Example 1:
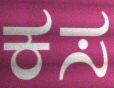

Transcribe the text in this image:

ಕಸ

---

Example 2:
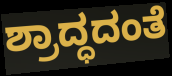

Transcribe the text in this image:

ಶ್ರಾದ್ಧದಂತೆ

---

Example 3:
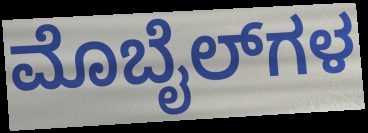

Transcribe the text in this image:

ಮೊಬೈಲ್‌ಗಳ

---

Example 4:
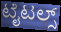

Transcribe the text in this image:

ಟೈಟಲ್ಸ್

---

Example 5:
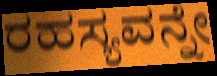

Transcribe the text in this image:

ರಹಸ್ಯವನ್ನೇ